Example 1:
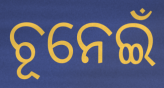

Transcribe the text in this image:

ଚୂନେଇଁ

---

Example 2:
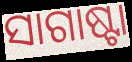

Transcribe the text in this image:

ସାଗାଷ୍ଟା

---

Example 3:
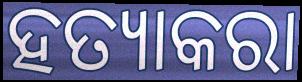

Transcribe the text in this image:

ହତ୍ୟାକରା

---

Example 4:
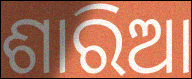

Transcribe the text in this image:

ଶାରିଆ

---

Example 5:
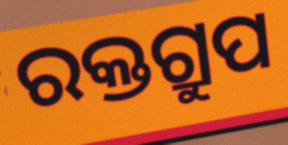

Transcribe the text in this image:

ରକ୍ତଗ୍ରୁପ